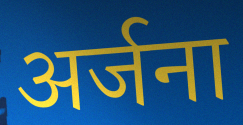
अर्जना